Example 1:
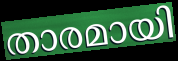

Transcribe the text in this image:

താരമായി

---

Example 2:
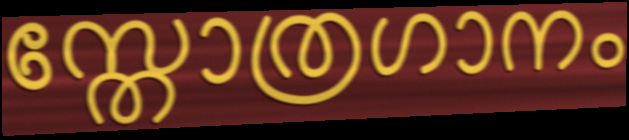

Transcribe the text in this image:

സ്തോത്രഗാനം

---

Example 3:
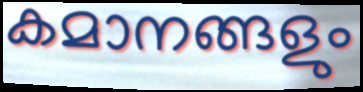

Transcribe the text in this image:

കമാനങ്ങളും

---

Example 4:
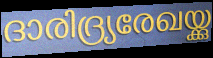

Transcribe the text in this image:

ദാരിദ്ര്യരേഖയ്ക്കു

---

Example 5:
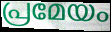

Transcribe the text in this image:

പ്രമേയം